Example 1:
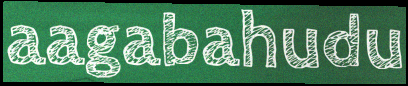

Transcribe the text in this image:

aagabahudu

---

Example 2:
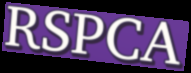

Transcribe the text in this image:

RSPCA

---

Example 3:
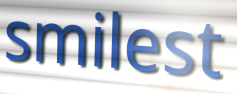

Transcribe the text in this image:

smilest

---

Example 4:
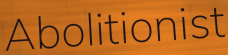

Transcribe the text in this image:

Abolitionist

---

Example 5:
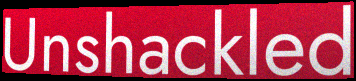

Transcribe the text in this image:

Unshackled